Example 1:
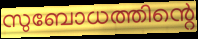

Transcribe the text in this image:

സുബോധത്തിന്റെ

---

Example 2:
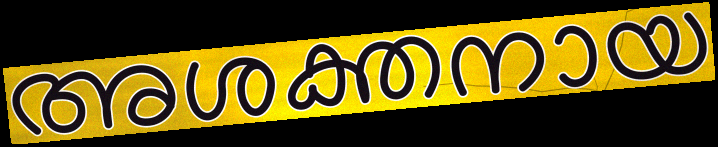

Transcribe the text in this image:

അശക്തനായ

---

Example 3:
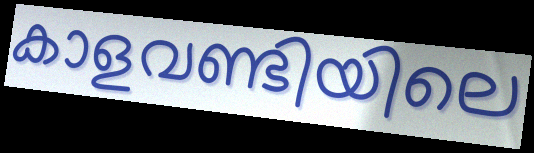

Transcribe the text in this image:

കാളവണ്ടിയിലെ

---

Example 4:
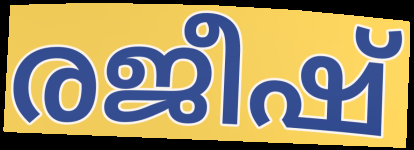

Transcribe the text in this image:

രജീഷ്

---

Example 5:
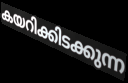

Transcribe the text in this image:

കയറിക്കിടക്കുന്ന